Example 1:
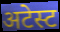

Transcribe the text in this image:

अटेस्ट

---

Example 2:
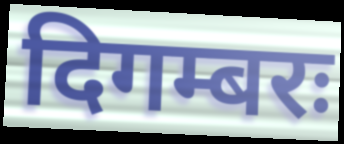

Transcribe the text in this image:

दिगम्बरः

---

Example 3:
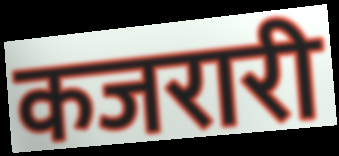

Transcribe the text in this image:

कजरारी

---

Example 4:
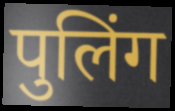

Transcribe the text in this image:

पुलिंग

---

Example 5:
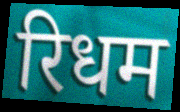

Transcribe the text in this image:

रिधम